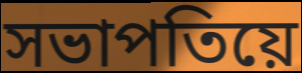
সভাপতিয়ে